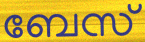
ബേസ്